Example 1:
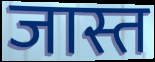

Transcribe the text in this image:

जास्त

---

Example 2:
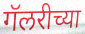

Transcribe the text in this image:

गॅलरीच्या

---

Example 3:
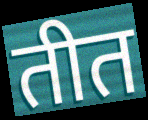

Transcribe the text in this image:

तीत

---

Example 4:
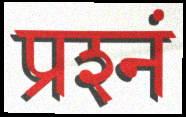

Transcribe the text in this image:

प्रश्‍नं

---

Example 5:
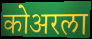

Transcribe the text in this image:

कोअरला